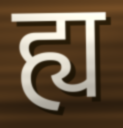
ह्य